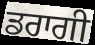
ਡਰਾਗੀ